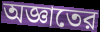
অজ্ঞাতের